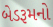
બેડરૂમનો